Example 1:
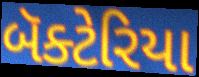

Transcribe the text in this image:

બૅક્ટેરિયા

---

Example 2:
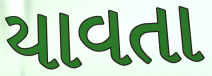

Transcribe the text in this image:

યાવતા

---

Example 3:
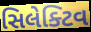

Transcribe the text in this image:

સિલેક્ટિવ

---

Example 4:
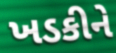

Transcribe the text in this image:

ખડકીને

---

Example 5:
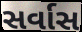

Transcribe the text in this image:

સર્વાસ